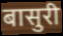
बासुरी